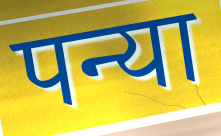
पन्या